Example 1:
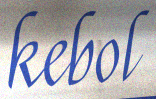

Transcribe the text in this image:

kebol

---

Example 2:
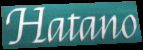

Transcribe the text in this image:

Hatano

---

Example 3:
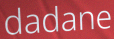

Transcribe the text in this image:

dadane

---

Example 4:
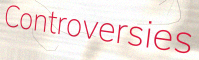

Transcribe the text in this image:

Controversies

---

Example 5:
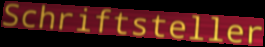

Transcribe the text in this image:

Schriftsteller